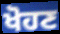
ਖੋਹਣ